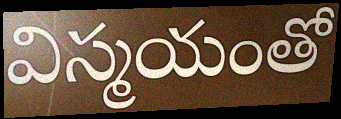
విస్మయంతో